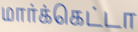
மார்க்கெட்டா